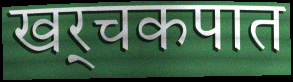
खर्चकपात